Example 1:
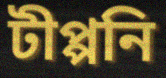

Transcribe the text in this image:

টীপ্পনি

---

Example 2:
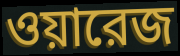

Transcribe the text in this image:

ওয়ারেজ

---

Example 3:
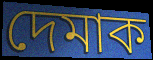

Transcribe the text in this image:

দেমাক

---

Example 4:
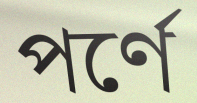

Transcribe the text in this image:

পর্ণে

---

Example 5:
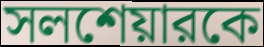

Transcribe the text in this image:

সলশেয়ারকে